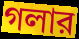
গলার